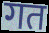
गत